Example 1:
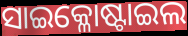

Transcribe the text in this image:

ସାଇକ୍ଳୋଷ୍ଟାଇଲ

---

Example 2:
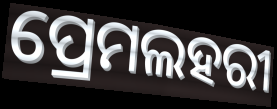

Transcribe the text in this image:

ପ୍ରେମଲହରୀ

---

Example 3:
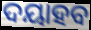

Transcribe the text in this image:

ଦୟାହବ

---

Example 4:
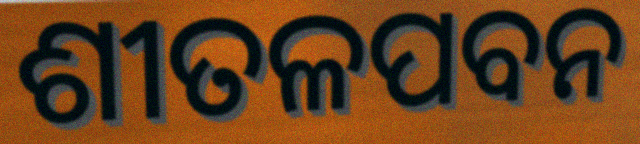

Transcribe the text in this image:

ଶୀତଳପବନ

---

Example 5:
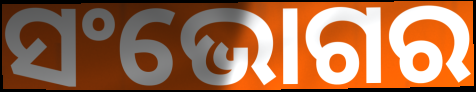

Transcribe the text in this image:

ସଂଭୋଗର